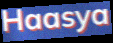
Haasya